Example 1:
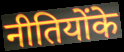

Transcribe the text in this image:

नीतियोंके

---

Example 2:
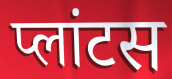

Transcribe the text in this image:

प्लांटस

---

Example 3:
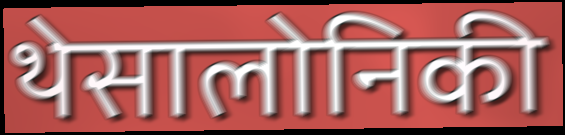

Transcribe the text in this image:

थेसालोनिकी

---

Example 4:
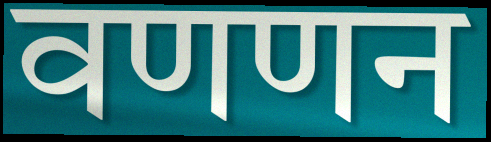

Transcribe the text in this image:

वणणन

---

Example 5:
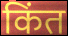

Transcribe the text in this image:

किंत